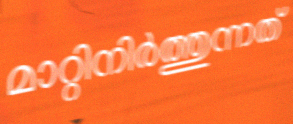
മാറ്റിനിർത്തുന്നത്